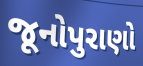
જૂનોપુરાણો